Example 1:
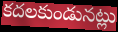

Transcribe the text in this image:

కదలకుండునట్లు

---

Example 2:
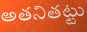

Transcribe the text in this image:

అతనితట్టు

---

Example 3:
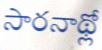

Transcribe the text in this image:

సారనాథ్లో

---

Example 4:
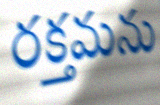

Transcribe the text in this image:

రక్తమను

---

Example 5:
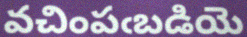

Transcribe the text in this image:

వచింపఁబడియె